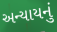
અન્યાયનું